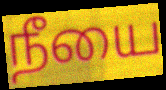
நீயை